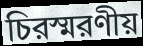
চিরস্মরণীয়